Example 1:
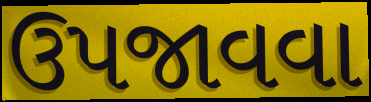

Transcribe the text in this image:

ઉપજાવવા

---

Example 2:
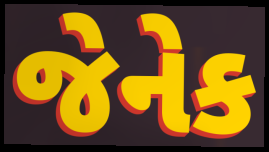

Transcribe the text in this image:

જેનેક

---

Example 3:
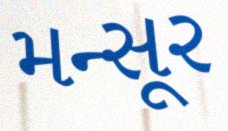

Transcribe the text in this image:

મન્સૂર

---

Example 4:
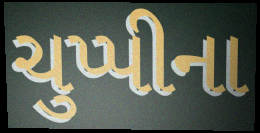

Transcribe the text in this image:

ચુપ્પીના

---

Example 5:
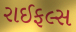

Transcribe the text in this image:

રાઈફલ્સ